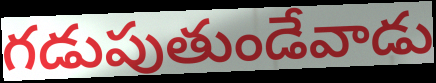
గడుపుతుండేవాడు